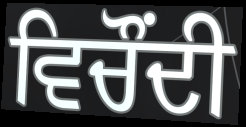
ਵਿਚੌਂਦੀ